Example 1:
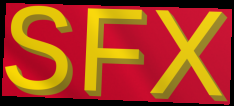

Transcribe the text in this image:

SFX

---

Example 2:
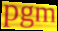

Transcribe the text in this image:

pgm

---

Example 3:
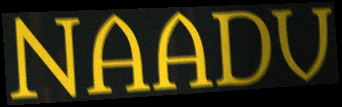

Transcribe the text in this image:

NAADU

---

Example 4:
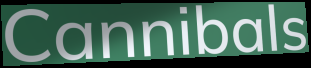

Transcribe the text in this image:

Cannibals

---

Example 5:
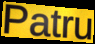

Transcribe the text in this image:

Patru